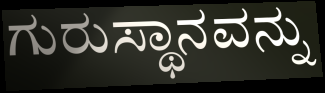
ಗುರುಸ್ಥಾನವನ್ನು